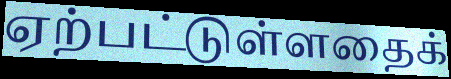
ஏற்பட்டுள்ளதைக்